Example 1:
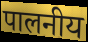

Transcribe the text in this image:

पालनीय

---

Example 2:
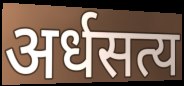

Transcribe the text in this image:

अर्धसत्य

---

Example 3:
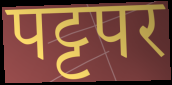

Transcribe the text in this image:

पट्टपर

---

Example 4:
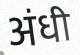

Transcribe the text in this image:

अंधी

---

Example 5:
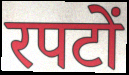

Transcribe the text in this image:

रपटों